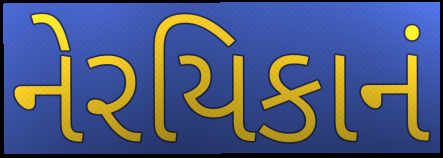
નેરયિકાનં